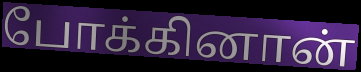
போக்கினான்